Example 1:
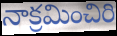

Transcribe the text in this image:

నాక్రమించిరి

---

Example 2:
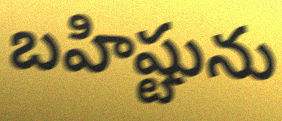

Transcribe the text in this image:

బహిష్టును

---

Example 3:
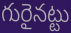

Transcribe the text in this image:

గురైనట్టు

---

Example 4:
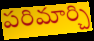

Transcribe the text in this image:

పరిమార్చి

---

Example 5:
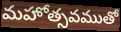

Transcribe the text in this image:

మహోత్సవముతో